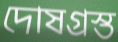
দোষগ্রস্ত